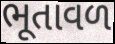
ભૂતાવળ